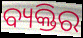
ବ୍ୟକ୍ତିର